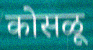
कोसळू